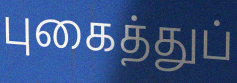
புகைத்துப்